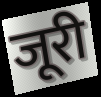
जूरी